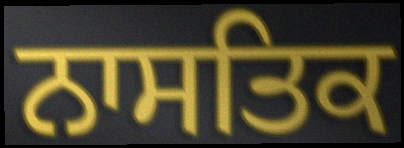
ਨਾਸਤਿਕ